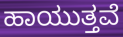
ಹಾಯುತ್ತವೆ